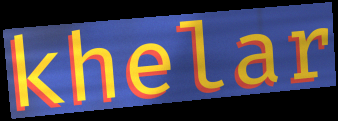
khelar